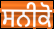
ਸਨੀਕੋ